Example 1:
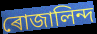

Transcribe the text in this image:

ৰোজালিন্দ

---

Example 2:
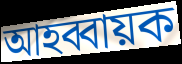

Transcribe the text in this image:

আহব্বায়ক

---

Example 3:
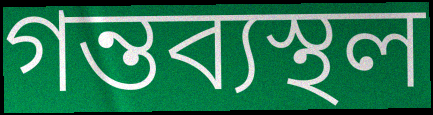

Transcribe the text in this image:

গন্তব্যস্থল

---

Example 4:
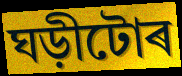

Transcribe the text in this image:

ঘড়ীটোৰ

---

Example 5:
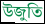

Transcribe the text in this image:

উজুতি